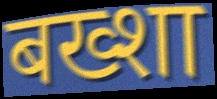
बख्शा